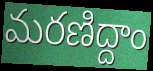
మరణిద్దాం